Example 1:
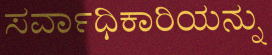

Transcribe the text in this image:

ಸರ್ವಾಧಿಕಾರಿಯನ್ನು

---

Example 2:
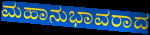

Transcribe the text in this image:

ಮಹಾನುಭಾವರಾದ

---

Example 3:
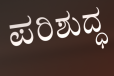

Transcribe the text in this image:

ಪರಿಶುದ್ಧ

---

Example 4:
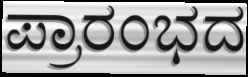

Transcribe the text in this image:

ಪ್ರಾರಂಭದ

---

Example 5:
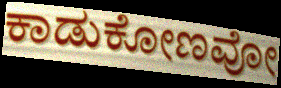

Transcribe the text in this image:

ಕಾಡುಕೋಣವೋ